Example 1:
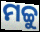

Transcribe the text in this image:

ମଚ୍ଚୁ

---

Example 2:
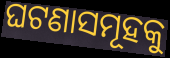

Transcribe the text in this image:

ଘଟଣାସମୂହକୁ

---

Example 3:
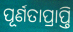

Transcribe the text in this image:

ପୂର୍ଣତାପ୍ରାପ୍ତି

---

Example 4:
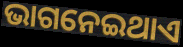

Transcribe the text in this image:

ଭାଗନେଇଥାଏ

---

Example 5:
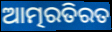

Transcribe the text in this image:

ଆତ୍ମରତିରତ